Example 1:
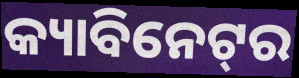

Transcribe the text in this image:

କ୍ୟାବିନେଟ୍‌ର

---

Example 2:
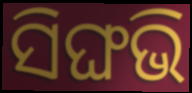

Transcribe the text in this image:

ସିଙ୍ଘଭି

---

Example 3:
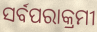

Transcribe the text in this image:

ସର୍ବପରାକ୍ରମୀ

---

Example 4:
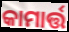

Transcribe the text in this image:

କାମାର୍ତ୍ତ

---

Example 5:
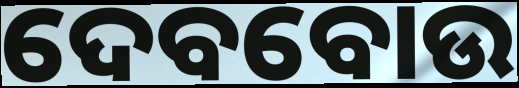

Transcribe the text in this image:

ଦେବବୋଉ